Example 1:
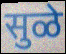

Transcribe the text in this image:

सुळे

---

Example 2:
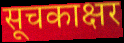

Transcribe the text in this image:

सूचकाक्षर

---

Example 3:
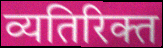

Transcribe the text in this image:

व्यतिरिक्त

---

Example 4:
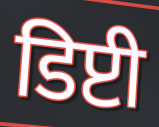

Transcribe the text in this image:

डिप्टी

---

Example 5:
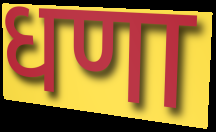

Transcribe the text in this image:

धणा